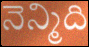
నెన్మిది